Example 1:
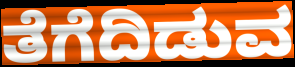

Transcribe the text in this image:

ತೆಗೆದಿಡುವ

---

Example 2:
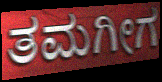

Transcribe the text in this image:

ತಮಗೀಗ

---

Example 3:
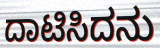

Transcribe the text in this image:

ದಾಟಿಸಿದನು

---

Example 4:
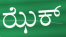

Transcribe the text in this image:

ಝೆಕ್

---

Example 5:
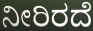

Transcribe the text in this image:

ನೀರಿರದೆ